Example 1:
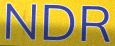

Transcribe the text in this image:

NDR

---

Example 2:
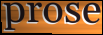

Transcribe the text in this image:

prose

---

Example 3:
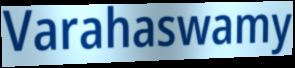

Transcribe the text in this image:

Varahaswamy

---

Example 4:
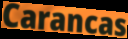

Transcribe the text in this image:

Carancas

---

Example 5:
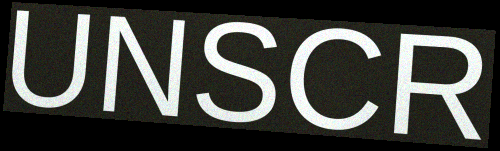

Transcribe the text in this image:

UNSCR